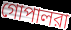
গোপালরা